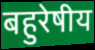
बहुरेषीय